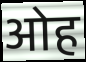
ओह